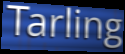
Tarling